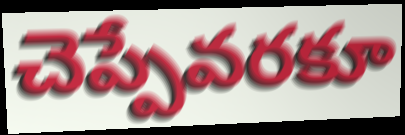
చెప్పేవరకూ